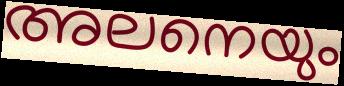
അലനെയും